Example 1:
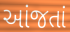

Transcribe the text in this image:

આંજતાં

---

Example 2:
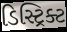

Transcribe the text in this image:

ડિસ્ટ્રિક્ટ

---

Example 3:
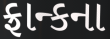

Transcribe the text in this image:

ફ્રાન્કના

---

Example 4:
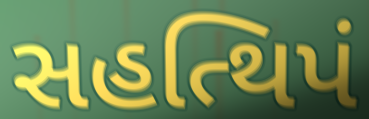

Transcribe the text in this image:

સહત્થિપં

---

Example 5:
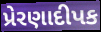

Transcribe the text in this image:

પ્રેરણાદીપક